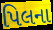
પિલના